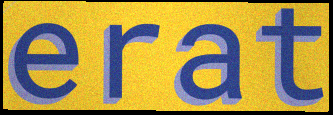
erat